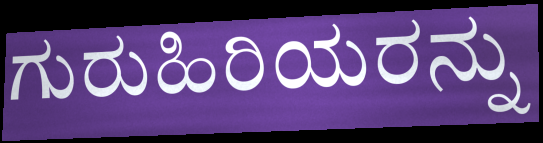
ಗುರುಹಿರಿಯರನ್ನು